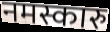
नमस्कारु